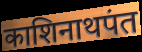
काशिनाथपंत